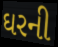
ઘરની